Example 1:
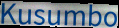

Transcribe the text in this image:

Kusumbo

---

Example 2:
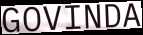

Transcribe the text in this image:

GOVINDA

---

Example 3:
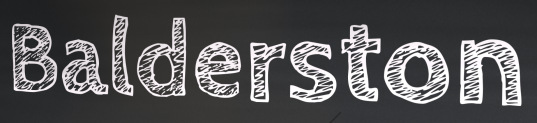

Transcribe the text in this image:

Balderston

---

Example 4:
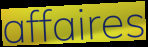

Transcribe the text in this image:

affaires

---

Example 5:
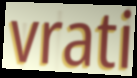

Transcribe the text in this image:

vrati